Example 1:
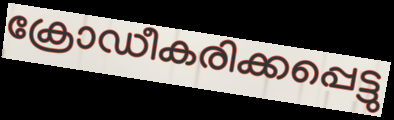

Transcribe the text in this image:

ക്രോഡീകരിക്കപ്പെട്ടു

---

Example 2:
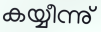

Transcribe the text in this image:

കയ്യീന്നു്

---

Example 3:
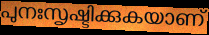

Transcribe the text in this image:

പുനഃസൃഷ്ടിക്കുകയാണ്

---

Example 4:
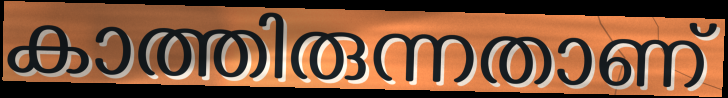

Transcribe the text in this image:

കാത്തിരുന്നതാണ്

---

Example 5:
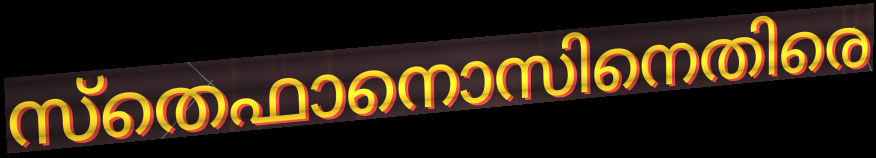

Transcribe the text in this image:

സ്തെഫാനൊസിനെതിരെ